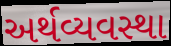
અર્થવ્યવસ્થા